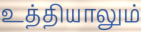
உத்தியாலும்